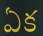
ఏక